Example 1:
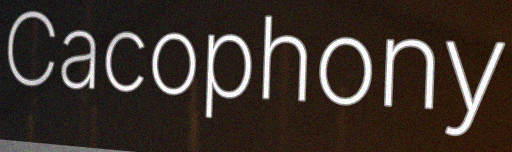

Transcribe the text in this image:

Cacophony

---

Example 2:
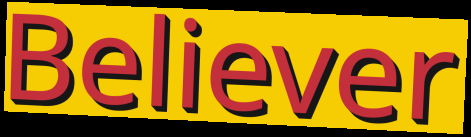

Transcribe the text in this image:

Believer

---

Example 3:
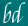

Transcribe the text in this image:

bd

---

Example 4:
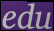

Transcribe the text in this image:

edu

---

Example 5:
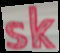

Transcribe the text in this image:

sk